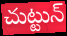
చుట్టున్